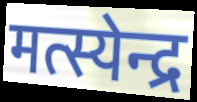
मत्स्येन्द्र